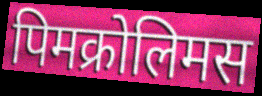
पिमक्रोलिमस